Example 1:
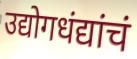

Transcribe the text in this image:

उद्योगधंद्यांचं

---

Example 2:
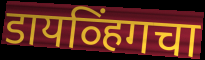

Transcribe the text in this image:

डायव्हिंगचा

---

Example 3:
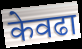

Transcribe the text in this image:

केवढा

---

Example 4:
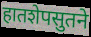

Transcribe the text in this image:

हातशेपसुतने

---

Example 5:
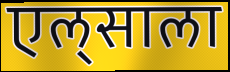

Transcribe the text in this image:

एल्साला